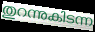
തുറന്നുകിടന്ന